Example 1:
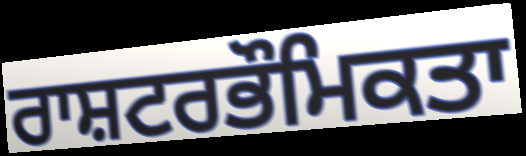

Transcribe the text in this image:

ਰਾਸ਼ਟਰਭੌਮਿਕਤਾ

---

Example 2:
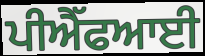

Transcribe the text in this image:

ਪੀਐੱਫਆਈ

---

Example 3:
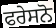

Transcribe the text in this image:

ਫਰੇਸਨੋ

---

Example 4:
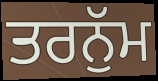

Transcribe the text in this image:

ਤਰਨੁੱਮ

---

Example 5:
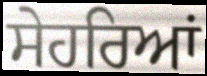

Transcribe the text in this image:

ਸੇਹਰਿਆਂ